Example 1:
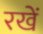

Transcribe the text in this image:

रखें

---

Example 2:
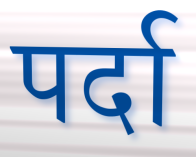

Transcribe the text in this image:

पर्दा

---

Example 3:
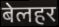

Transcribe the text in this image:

बेलहर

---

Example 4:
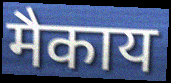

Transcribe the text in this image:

मैकाय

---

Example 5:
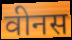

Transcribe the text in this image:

वीनस